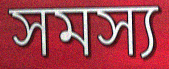
সমস্য